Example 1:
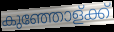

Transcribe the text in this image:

കുഞ്ഞോള്ക്ക്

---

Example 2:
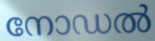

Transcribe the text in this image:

നോഡൽ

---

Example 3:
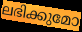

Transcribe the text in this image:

ലഭിക്കുമോ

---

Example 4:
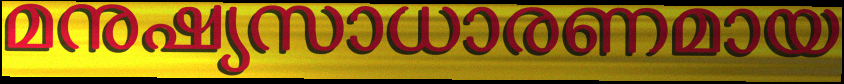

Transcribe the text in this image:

മനുഷ്യസാധാരണമായ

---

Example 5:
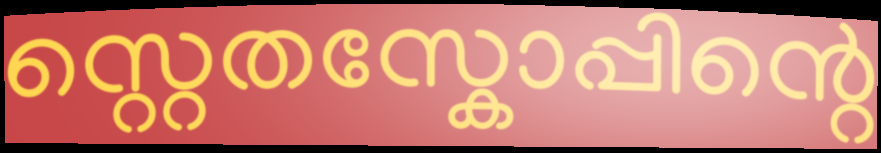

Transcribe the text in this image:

സ്റ്റെതസ്കോപ്പിന്റെ